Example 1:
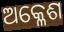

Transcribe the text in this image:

ଅକ୍ଳେଶ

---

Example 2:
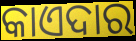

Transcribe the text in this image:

କାଏଦାର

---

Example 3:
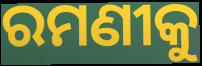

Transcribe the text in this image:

ରମଣୀକୁ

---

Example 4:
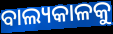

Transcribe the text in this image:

ବାଲ୍ୟକାଳକୁ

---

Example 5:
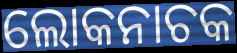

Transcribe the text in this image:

ଲୋକନାଚକ